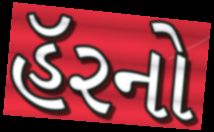
હૅરનો